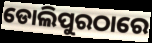
ଡୋଲିପୁରଠାରେ